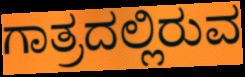
ಗಾತ್ರದಲ್ಲಿರುವ